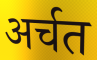
अर्चत